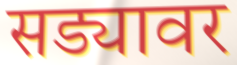
सड्यावर